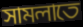
সামলাতে